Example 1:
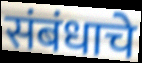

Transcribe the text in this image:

संबंधाचे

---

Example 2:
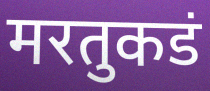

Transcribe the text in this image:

मरतुकडं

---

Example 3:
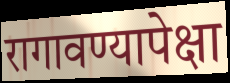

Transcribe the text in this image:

रागावण्यापेक्षा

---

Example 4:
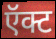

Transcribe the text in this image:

ऍक्ट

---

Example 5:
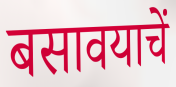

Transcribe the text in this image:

बसावयाचें